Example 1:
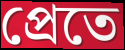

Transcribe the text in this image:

প্রেতে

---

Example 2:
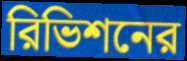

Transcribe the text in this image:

রিভিশনের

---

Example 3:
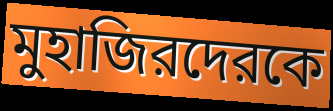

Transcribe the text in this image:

মুহাজিরদেরকে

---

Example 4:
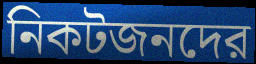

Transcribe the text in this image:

নিকটজনদের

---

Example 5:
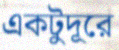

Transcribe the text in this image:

একটুদূরে